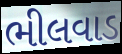
ભીલવાડ